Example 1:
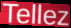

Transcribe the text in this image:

Tellez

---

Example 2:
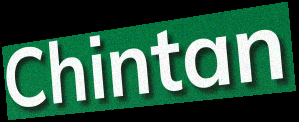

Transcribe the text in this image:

Chintan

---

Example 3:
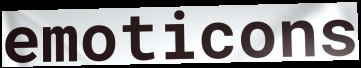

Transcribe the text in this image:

emoticons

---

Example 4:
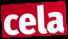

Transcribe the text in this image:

cela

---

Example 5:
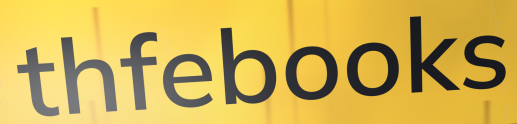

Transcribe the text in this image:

thfebooks